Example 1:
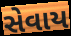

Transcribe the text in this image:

સેવાય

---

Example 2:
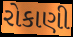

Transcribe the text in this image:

રોકાણી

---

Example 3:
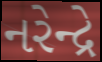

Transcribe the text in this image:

નરેન્દ્રે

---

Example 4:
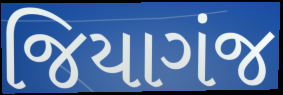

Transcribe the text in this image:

જિયાગંજ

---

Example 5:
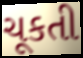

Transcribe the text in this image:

ચૂકતી